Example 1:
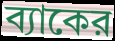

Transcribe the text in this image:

ব্যাকের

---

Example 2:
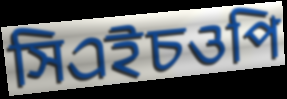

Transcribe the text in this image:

সিএইচওপি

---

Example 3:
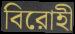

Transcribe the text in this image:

বিরোহী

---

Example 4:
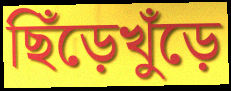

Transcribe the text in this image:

ছিঁড়েখুঁড়ে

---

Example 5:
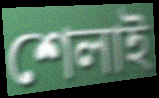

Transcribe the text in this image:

শেলাই